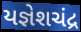
યજ્ઞેશચંદ્ર